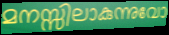
മനസ്സിലാകുന്നുവോ